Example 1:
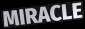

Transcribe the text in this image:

MIRACLE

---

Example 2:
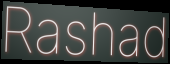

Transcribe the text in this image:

Rashad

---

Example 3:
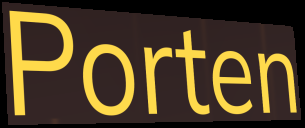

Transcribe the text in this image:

Porten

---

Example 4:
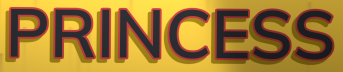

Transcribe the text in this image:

PRINCESS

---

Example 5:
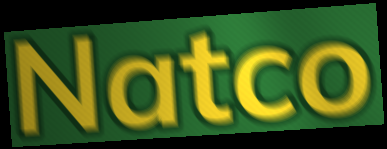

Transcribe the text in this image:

Natco